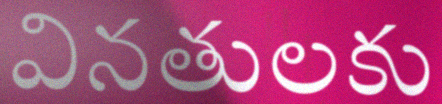
వినతులకు